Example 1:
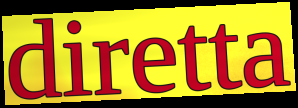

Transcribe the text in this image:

diretta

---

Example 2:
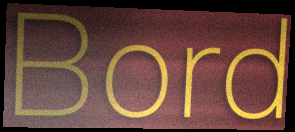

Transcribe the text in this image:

Bord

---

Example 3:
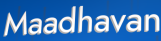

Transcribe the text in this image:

Maadhavan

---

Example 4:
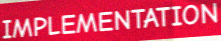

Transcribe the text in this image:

IMPLEMENTATION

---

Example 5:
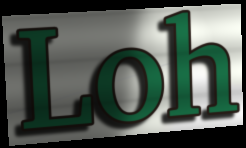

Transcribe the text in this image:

Loh